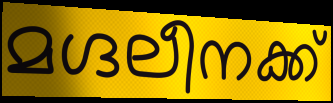
മഗ്ദലീനക്ക്